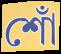
শোঁ